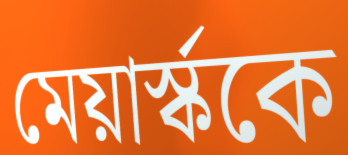
মেয়ার্স্ককে